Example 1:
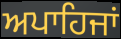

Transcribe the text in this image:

ਅਪਾਹਿਜਾਂ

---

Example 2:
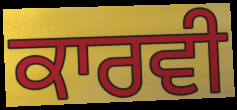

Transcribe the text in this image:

ਕਾਰਵੀ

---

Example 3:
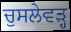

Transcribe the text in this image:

ਚੁਸਲੇਵੜ੍ਹ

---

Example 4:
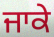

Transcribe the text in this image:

ਜਾਕੇ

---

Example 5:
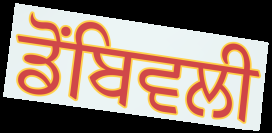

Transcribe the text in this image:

ਡੋਂਬਿਵਲੀ